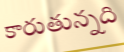
కారుతున్నది